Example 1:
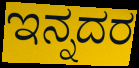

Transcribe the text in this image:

ಇನ್ನದರ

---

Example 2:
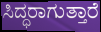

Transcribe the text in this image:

ಸಿದ್ಧರಾಗುತ್ತಾರೆ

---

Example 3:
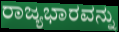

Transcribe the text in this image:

ರಾಜ್ಯಭಾರವನ್ನು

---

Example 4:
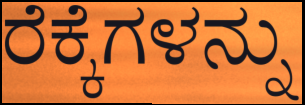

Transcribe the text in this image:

ರೆಕ್ಕೆಗಳನ್ನು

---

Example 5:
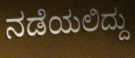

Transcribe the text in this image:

ನಡೆಯಲಿದ್ದು